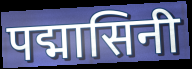
पद्मासिनी